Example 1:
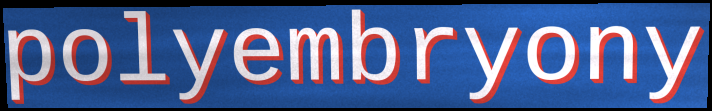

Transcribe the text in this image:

polyembryony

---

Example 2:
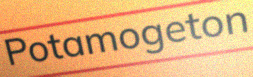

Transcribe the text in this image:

Potamogeton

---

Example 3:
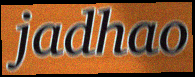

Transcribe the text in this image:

jadhao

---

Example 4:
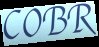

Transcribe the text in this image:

COBR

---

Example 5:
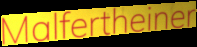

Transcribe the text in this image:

Malfertheiner